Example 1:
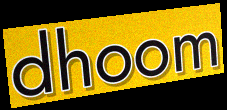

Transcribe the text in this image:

dhoom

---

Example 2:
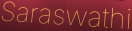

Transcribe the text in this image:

Saraswathi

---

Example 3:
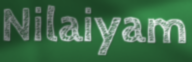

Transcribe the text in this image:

Nilaiyam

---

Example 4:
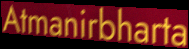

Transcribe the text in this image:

Atmanirbharta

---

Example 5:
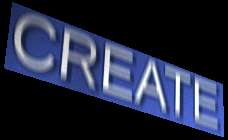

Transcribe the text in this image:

CREATE